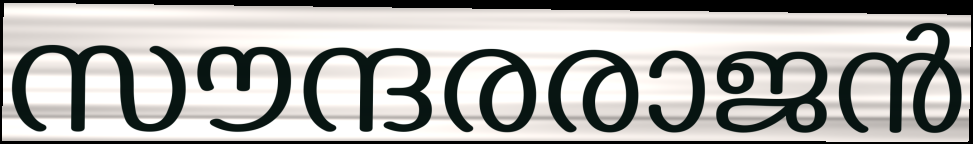
സൗന്ദരരാജൻ